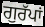
ਗੁਰੱਪਾਂ